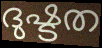
ദുഷ്ടത